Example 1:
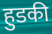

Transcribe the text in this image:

हुडकी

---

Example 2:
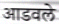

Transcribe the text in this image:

आडवले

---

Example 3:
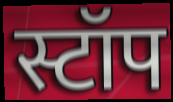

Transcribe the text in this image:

स्टॉप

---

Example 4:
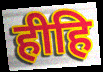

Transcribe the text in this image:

हीहि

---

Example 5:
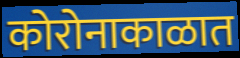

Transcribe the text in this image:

कोरोनाकाळात